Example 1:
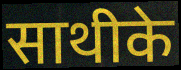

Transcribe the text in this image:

साथीके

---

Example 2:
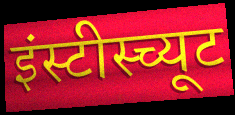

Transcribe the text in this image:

इंस्टीस्च्यूट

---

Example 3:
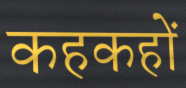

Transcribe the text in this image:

कहकहों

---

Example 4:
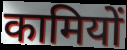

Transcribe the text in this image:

कामियों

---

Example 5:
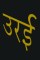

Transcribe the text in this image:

उरई